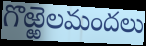
గొఱ్ఱెలమందలు